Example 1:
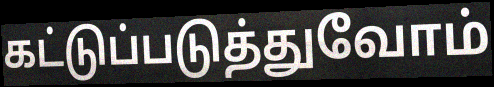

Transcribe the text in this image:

கட்டுப்படுத்துவோம்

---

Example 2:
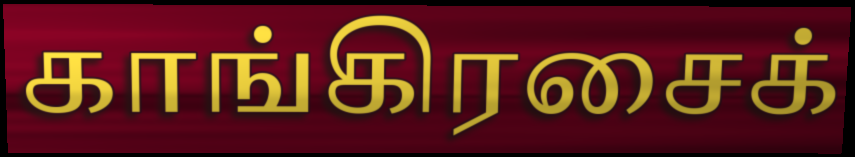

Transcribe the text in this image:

காங்கிரசைக்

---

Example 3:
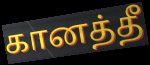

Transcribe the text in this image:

கானத்தீ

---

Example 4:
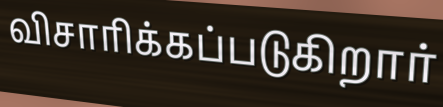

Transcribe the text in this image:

விசாரிக்கப்படுகிறார்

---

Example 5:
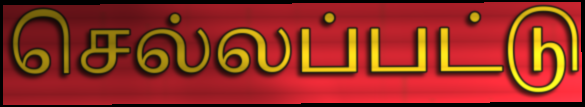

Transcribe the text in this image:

செல்லப்பட்டு